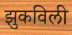
झुकविली